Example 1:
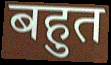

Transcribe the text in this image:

बहुत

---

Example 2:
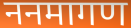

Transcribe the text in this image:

ननमागण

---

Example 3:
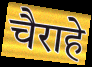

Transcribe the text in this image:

चैराहे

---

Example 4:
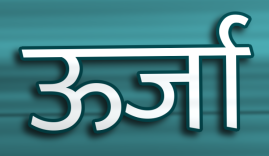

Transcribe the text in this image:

ऊर्जा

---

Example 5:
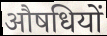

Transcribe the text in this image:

औषधियों